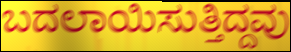
ಬದಲಾಯಿಸುತ್ತಿದ್ದವು